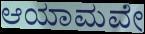
ಆಯಾಮವೇ